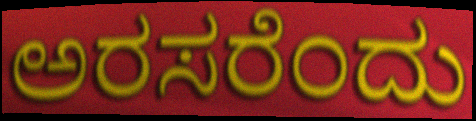
ಅರಸರೆಂದು